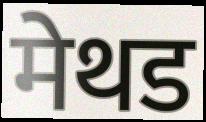
मेथड